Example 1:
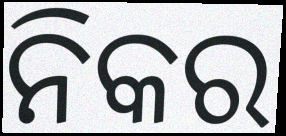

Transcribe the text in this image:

ନିକର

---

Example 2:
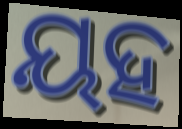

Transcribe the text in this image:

ୟହ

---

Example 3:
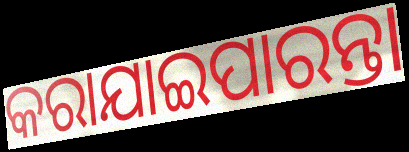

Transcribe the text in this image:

କରାଯାଇପାରନ୍ତା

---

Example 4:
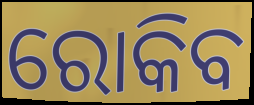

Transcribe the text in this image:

ରୋକିବ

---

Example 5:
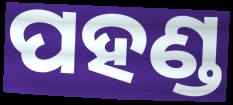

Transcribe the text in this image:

ପହଣ୍ଡ